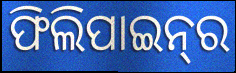
ଫିଲିପାଇନ୍‌ର